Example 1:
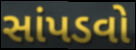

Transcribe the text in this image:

સાંપડવો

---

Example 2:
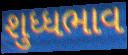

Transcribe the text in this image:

શુધ્ધભાવ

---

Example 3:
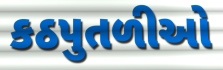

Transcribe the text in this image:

કઠપુતળીઓ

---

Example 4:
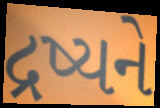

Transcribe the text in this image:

દ્રષ્યને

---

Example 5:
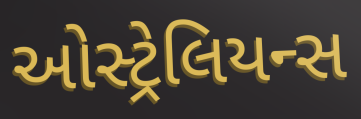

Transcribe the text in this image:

ઓસ્ટ્રેલિયન્સ